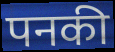
पनकी